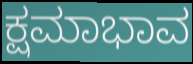
ಕ್ಷಮಾಭಾವ